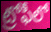
ట్రోఫీలో